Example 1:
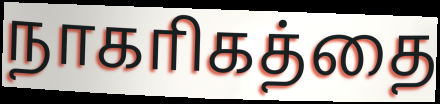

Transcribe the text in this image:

நாகரிகத்தை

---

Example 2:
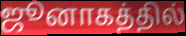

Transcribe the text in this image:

ஜூனாகத்தில்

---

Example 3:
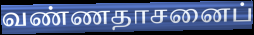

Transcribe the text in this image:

வண்ணதாசனைப்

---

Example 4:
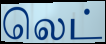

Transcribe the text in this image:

லெட்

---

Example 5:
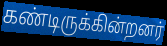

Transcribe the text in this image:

கண்டிருக்கின்றனர்